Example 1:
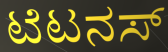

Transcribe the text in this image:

ಟೆಟನಸ್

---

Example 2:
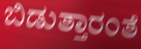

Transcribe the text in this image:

ಬಿಡುತ್ತಾರಂತೆ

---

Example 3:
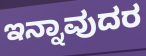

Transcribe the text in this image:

ಇನ್ನಾವುದರ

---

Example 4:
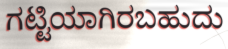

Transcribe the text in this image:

ಗಟ್ಟಿಯಾಗಿರಬಹುದು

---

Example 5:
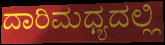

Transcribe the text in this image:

ದಾರಿಮಧ್ಯದಲ್ಲಿ